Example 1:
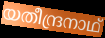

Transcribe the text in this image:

യതീന്ദ്രനാഥ്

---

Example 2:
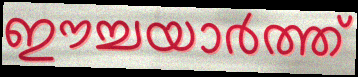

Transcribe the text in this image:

ഈച്ചയാർത്ത്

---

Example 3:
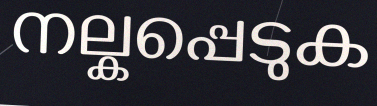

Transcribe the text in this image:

നല്കപ്പെടുക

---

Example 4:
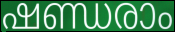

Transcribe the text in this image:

ഷണ്ഡരാം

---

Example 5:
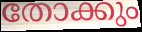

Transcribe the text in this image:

തോക്കും